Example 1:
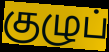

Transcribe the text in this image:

குழுப்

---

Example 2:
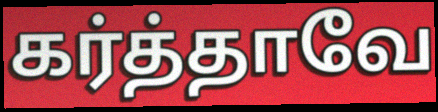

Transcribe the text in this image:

கர்த்தாவே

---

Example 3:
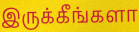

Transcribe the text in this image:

இருக்கீங்களா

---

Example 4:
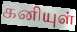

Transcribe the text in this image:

கனியுள்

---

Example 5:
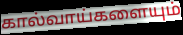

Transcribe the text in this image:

கால்வாய்களையும்